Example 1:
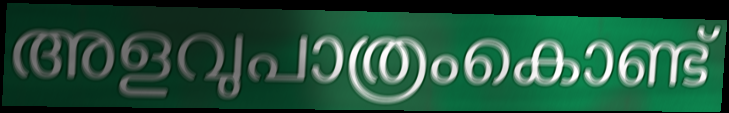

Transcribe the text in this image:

അളവുപാത്രംകൊണ്ട്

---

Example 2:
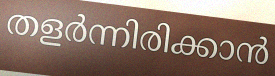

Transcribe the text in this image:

തളർന്നിരിക്കാൻ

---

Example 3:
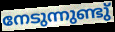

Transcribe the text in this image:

നേടുന്നുണ്ടു്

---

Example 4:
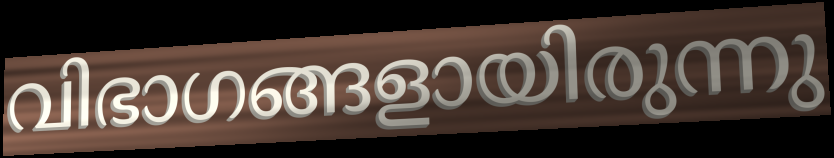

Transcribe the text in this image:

വിഭാഗങ്ങളായിരുന്നു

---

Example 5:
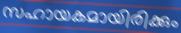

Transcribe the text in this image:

സഹായകമായിരിക്കും